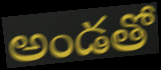
అండతో